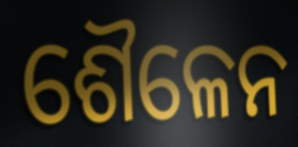
ଶୈଳେନ